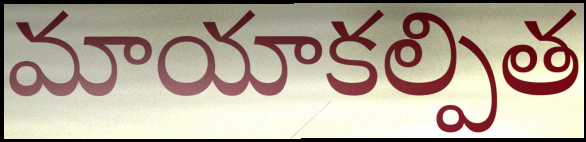
మాయాకల్పిత